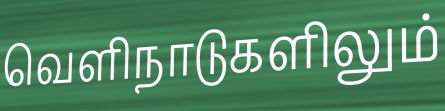
வெளிநாடுகளிலும்